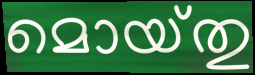
മൊയ്‌തു